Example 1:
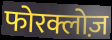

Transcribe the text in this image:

फोरक्लोज़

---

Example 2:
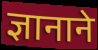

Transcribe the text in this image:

ज्ञानाने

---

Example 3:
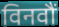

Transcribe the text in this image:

विनवौं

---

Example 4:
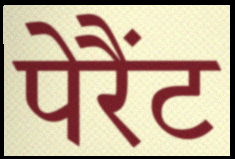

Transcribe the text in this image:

पेरैंट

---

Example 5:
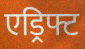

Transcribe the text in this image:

एड्रिफ्ट